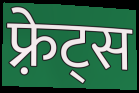
फ़्रेट्स